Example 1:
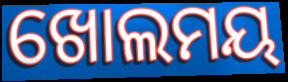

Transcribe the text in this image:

ଖୋଲମୟ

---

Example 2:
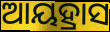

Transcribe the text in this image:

ଆୟହ୍ରାସ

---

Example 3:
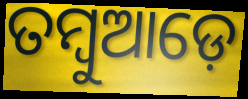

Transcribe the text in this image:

ତମ୍ବୁଆଡ଼େ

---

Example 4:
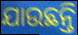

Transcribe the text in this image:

ଯାଉଛନ୍ତି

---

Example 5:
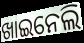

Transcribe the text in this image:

ଖାଇନେଲି